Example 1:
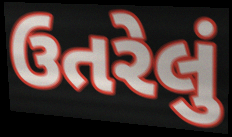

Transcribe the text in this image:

ઉતરેલું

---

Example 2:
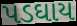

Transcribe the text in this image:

પડઘાય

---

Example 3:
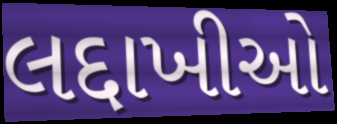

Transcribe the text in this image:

લદ્દાખીઓ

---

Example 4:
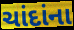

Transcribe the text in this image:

ચાંદાંના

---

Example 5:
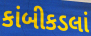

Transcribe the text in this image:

કાંબીકડલાં